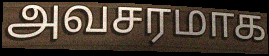
அவசரமாக